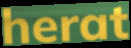
herat